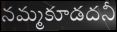
నమ్మకూడదనీ